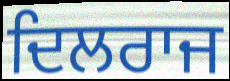
ਦਿਲਰਾਜ